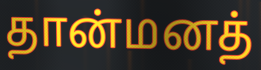
தான்மனத்